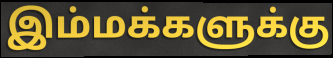
இம்மக்களுக்கு